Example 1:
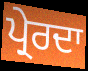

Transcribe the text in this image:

ਪ੍ਰੇਰਦਾ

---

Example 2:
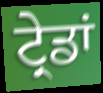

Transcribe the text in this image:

ਟ੍ਰੇਡਾਂ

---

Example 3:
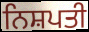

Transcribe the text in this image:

ਨਿਸ਼ਪਤੀ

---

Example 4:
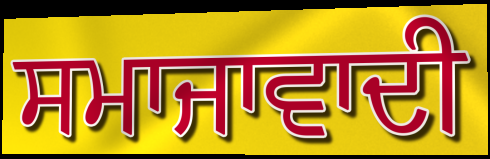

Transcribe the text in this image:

ਸਮਾਜਾਵਾਦੀ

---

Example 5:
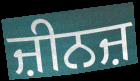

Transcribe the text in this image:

ਜ਼ੀਨਜ਼